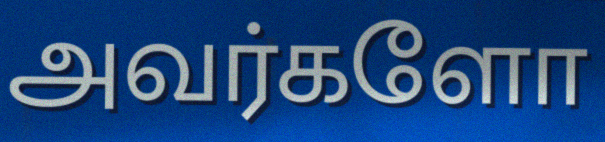
அவர்களோ